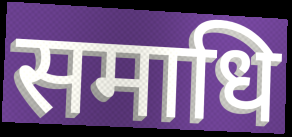
समाधि